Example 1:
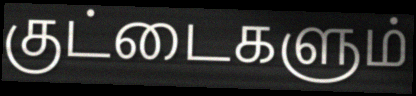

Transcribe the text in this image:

குட்டைகளும்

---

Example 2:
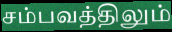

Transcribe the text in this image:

சம்பவத்திலும்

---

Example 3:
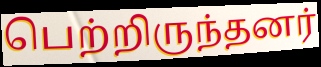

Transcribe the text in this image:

பெற்றிருந்தனர்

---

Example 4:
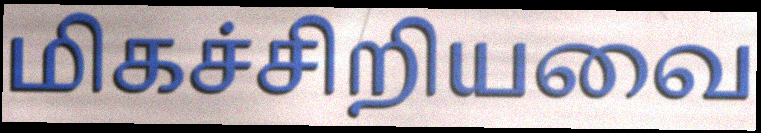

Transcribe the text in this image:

மிகச்சிறியவை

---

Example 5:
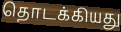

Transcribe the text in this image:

தொடக்கியது